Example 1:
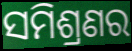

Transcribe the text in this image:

ସମିଶ୍ରଣର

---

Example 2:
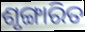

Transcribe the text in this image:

ଶୃଙ୍ଗାରିତ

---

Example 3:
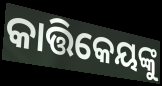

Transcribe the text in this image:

କାତ୍ତିକେୟଙ୍କୁ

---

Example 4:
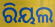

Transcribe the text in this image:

ରିୟଲ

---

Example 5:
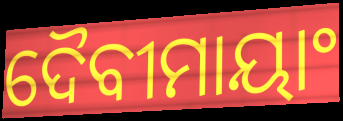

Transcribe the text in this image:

ଦୈବୀମାୟାଂ